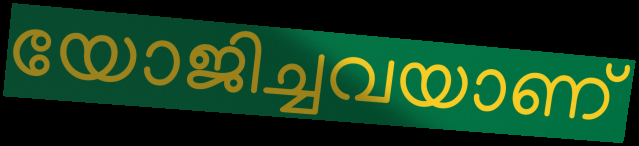
യോജിച്ചവയാണ്